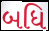
બધિ